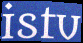
istu